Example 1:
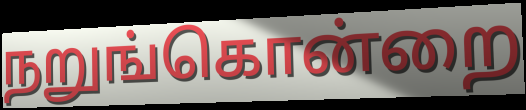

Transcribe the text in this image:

நறுங்கொன்றை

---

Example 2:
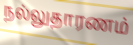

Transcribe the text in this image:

நல்லுதாரணம்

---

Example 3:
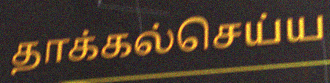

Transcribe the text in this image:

தாக்கல்செய்ய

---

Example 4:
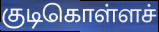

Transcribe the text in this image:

குடிகொள்ளச்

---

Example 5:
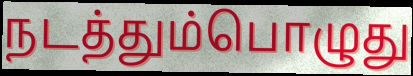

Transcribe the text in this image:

நடத்தும்பொழுது